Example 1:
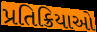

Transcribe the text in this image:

પ્રતિક્રિયાઓ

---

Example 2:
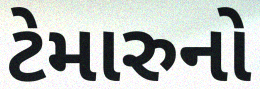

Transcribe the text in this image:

ટેમારુનો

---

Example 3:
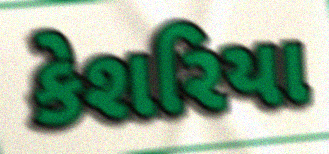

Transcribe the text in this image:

કેશરિયા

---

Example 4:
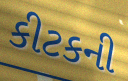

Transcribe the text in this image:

કીટકની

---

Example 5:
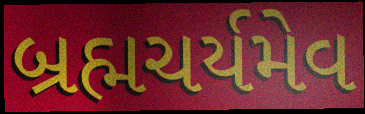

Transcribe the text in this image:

બ્રહ્મચર્યમેવ